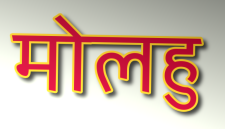
मोलहु